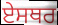
ਏਸਥਰ